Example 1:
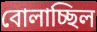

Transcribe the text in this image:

বোলাচ্ছিল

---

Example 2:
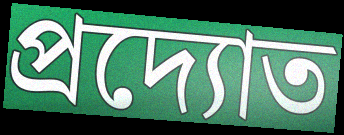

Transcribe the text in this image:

প্রদ্যোত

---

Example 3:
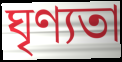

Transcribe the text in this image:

ঘৃণ্যতা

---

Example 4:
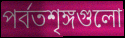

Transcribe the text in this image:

পর্বতশৃঙ্গগুলো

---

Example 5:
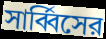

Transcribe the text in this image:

সার্ব্বিসের